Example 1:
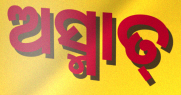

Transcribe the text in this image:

ଅସ୍ମାତ୍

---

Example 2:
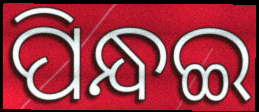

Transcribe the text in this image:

ପିନ୍ଧଇ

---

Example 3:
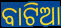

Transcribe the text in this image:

ବାଟିଆ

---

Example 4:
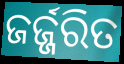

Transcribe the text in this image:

ଜର୍ଜ୍ଜରିତ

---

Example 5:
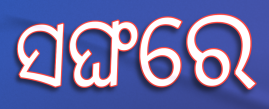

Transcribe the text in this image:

ସଙ୍ଘରେ